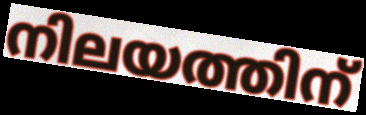
നിലയത്തിന്